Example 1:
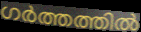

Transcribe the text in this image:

ഗർത്തത്തിൽ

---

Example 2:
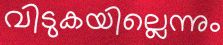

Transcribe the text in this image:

വിടുകയില്ലെന്നും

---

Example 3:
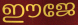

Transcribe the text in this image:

ഈജേ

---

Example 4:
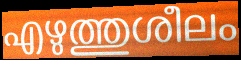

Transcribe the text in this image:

എഴുത്തുശീലം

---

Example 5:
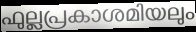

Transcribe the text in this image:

ഫുല്ലപ്രകാശമിയലും